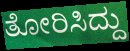
ತೋರಿಸಿದ್ದು